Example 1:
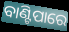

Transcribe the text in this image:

ବାଣ୍ଟିପାରେ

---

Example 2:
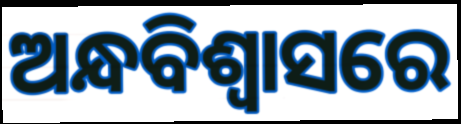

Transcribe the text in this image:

ଅନ୍ଧବିଶ୍ବାସରେ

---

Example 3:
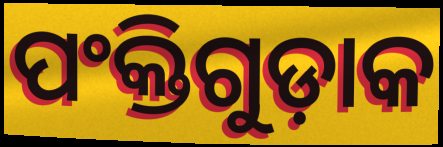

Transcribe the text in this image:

ପଂକ୍ତିଗୁଡ଼ାକ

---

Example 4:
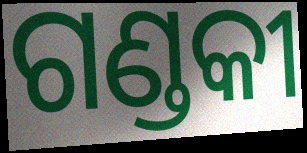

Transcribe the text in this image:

ଗଣ୍ଡକୀ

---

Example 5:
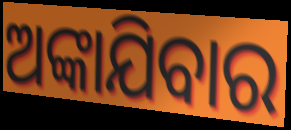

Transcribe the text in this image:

ଅଙ୍କାଯିବାର